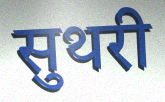
सुथरी